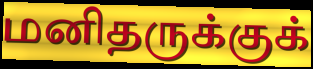
மனிதருக்குக்